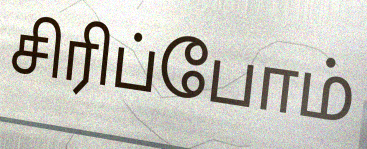
சிரிப்போம்